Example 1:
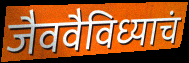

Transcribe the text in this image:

जैववैविध्याचं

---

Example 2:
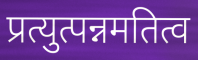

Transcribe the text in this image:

प्रत्युत्पन्नमतित्व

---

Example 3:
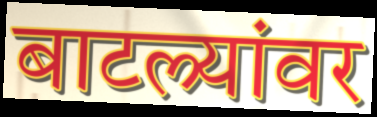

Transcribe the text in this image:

बाटल्यांवर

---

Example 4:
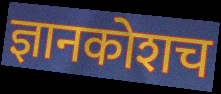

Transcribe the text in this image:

ज्ञानकोशच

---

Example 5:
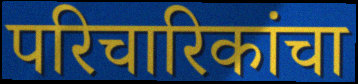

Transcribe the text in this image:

परिचारिकांचा